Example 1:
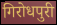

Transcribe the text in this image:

गिरोधपुरी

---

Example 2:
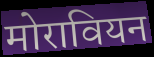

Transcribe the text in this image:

मोरावियन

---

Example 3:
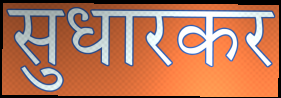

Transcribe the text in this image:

सुधारकर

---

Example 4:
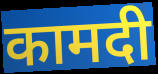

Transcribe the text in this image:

कामदी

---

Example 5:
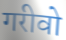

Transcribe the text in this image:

गरीवो